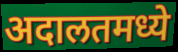
अदालतमध्ये